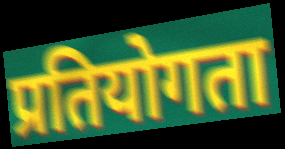
प्रतियोगता